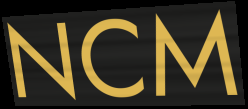
NCM